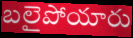
బలైపోయారు